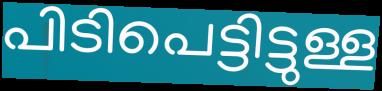
പിടിപെട്ടിട്ടുള്ള